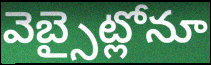
వెబ్సైట్లోనూ